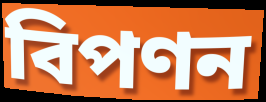
বিপণন